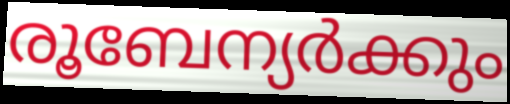
രൂബേന്യർക്കും